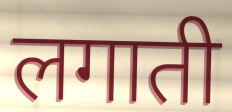
लगाती